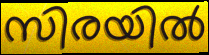
സിരയിൽ